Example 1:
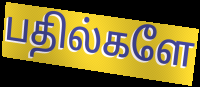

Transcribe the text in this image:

பதில்களே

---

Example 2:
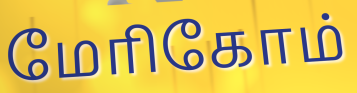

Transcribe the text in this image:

மேரிகோம்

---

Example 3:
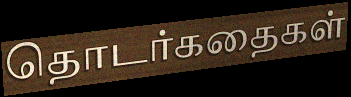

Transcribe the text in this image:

தொடர்கதைகள்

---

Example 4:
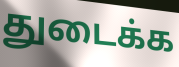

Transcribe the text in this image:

துடைக்க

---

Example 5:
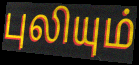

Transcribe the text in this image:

புலியும்